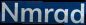
Nmrad